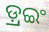
ଡ଼୍ରଇଂ